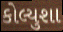
કોલ્યુશા